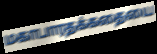
மகாபாரதக்கதையை